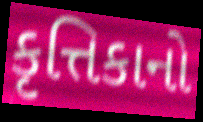
કૃત્તિકાનો